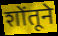
शोंतूने